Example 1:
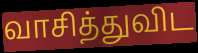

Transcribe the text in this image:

வாசித்துவிட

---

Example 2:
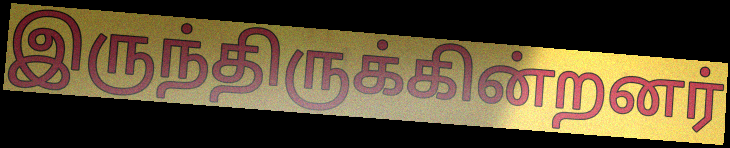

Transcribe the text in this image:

இருந்திருக்கின்றனர்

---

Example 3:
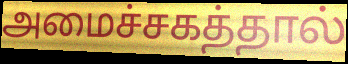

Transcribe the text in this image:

அமைச்சகத்தால்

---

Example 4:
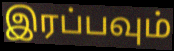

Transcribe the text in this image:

இரப்பவும்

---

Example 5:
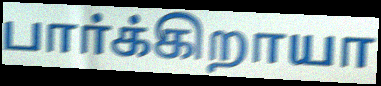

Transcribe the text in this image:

பார்க்கிறாயா